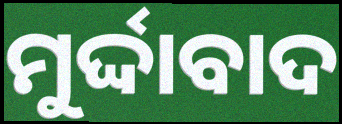
ମୁର୍ଦ୍ଦାବାଦ